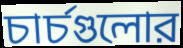
চার্চগুলোর